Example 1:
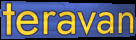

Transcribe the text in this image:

teravan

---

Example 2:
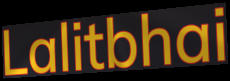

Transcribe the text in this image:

Lalitbhai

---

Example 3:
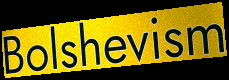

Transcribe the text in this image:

Bolshevism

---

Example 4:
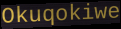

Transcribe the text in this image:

Okuqokiwe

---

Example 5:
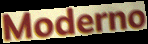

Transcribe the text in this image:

Moderno